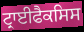
ਟ੍ਰਾਈਫੈਕਸਿਸ